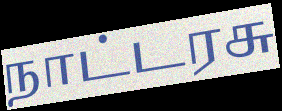
நாட்டரசு